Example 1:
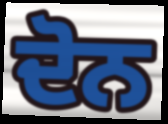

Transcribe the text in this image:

ਦੋਨ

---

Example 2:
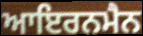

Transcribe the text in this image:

ਆਇਰਨਮੈਨ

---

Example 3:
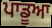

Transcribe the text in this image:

ਪਾਡੂਆ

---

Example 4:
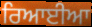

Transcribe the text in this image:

ਰਿਆਈਆ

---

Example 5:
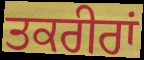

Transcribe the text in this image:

ਤਕਰੀਰਾਂ